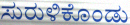
ಸುರುಳಿಕೊಂಡು